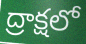
ద్రాక్షలో